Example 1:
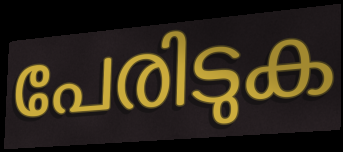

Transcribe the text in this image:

പേരിടുക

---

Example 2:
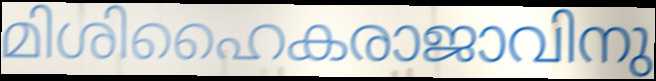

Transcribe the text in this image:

മിശിഹൈകരാജാവിനു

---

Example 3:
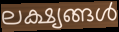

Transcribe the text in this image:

ലക്ഷ്യങ്ങൾ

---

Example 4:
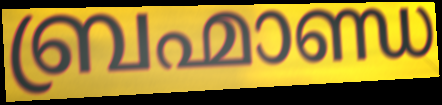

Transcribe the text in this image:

ബ്രഹ്മാണ്ഡ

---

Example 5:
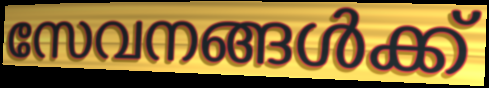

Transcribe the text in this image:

സേവനങ്ങൾക്ക്